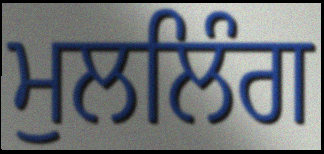
ਮੁਲਲਿੰਗ